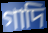
গাদি